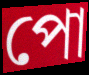
পো